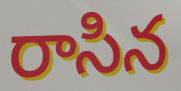
రాసిన